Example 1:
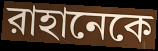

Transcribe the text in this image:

রাহানেকে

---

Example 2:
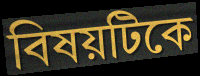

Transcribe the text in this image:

বিষয়টিকে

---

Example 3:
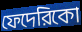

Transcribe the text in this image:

ফেদেরিকো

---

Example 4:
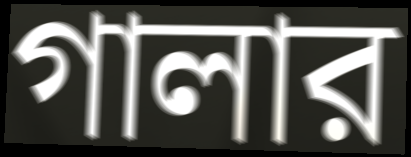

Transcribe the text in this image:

গালার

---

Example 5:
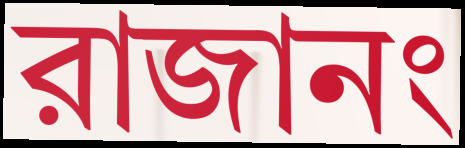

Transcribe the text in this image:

রাজানং